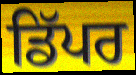
ਡਿੱਪਰ